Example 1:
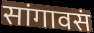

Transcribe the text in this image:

सांगावसं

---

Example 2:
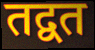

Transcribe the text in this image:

तद्वत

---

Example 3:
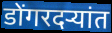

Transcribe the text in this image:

डोंगरदऱ्यांत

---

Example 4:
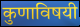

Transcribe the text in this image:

कुणाविषयी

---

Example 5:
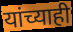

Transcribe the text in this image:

यांच्याही